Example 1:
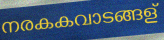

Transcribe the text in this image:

നരകകവാടങ്ങള്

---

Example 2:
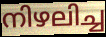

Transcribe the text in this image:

നിഴലിച്ച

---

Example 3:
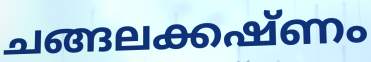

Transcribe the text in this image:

ചങ്ങലക്കഷ്ണം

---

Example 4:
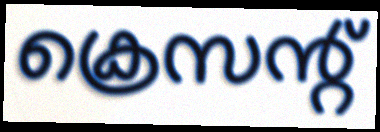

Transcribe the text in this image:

ക്രെസന്റ്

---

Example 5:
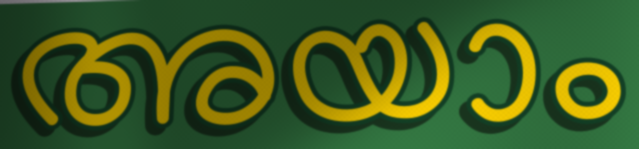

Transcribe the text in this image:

അയാം